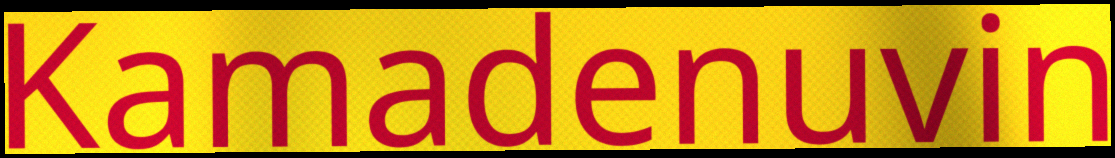
Kamadenuvin